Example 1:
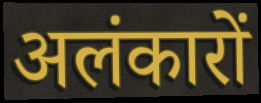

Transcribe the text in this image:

अलंकारों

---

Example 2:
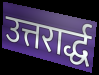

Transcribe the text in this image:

उत्तरार्द्ध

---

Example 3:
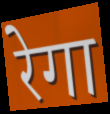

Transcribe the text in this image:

रेगा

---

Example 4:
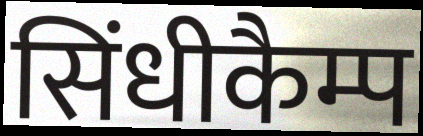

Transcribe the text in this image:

सिंधीकैम्प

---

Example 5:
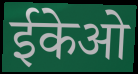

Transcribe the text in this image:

ईकेओ